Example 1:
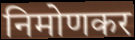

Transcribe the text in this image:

निमोणकर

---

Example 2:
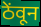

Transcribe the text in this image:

ठेंवून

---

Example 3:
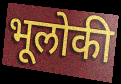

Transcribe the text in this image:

भूलोकी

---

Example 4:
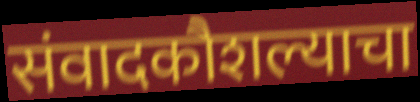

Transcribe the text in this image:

संवादकौशल्याचा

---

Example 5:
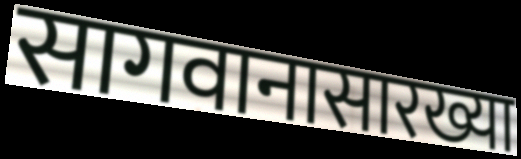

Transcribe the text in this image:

सागवानासारख्या